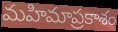
మహిమాప్రకాశం